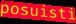
posuisti